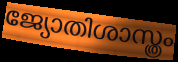
ജ്യോതിശാസ്ത്രം